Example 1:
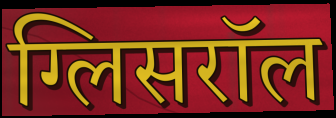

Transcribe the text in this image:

ग्लिसरॉल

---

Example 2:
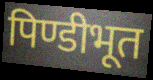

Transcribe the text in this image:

पिण्डीभूत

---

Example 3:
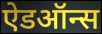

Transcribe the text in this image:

ऐडऑन्स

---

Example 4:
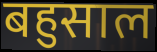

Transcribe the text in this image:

बहुसाल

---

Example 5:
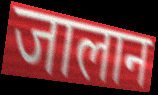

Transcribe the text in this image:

जालान